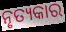
ନୃତ୍ୟକାର